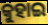
କୁହାଇ